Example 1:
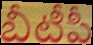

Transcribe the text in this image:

బీటీపీ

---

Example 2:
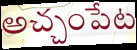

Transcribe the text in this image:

అచ్చంపేట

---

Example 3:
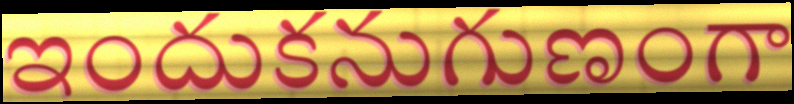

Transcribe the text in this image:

ఇందుకనుగుణంగా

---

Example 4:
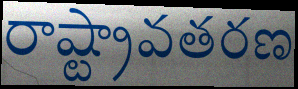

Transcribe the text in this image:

రాష్ట్రావతరణ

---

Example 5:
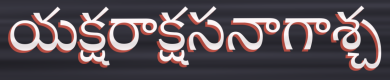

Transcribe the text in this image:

యక్షరాక్షసనాగాశ్చ